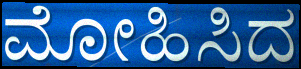
ಮೋಹಿಸಿದ